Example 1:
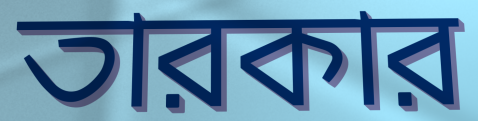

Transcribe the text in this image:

তারকার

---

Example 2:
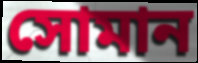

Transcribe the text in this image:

সোমান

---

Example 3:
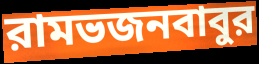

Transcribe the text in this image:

রামভজনবাবুর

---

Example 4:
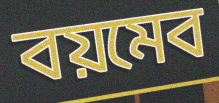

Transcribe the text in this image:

বয়মেব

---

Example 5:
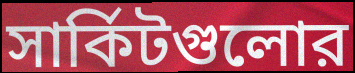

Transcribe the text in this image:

সার্কিটগুলোর